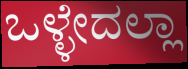
ಒಳ್ಳೇದಲ್ಲಾ